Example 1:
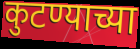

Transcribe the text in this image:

कुटण्याच्या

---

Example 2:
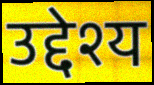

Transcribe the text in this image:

उद्देश्य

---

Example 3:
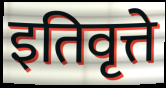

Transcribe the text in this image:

इतिवृत्ते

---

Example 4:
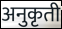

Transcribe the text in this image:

अनुकृती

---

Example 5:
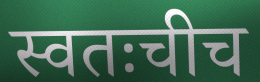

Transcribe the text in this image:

स्वतःचीच